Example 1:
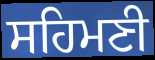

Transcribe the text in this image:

ਸਹਿਮਣੀ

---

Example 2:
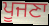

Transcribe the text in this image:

ਪੂਜਣਾ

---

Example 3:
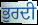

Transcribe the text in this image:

ਭੁਰਦੀ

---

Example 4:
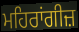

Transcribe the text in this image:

ਮਹਿਰਾਂਗੀਜ਼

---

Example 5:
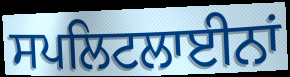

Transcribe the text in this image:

ਸਪਲਿਟਲਾਈਨਾਂ